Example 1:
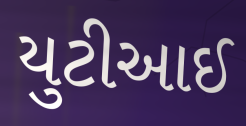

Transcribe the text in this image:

યુટીઆઈ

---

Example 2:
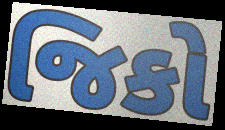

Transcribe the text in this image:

જિકો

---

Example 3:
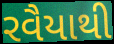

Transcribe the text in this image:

રવૈયાથી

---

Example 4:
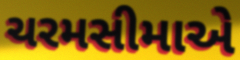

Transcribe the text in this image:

ચરમસીમાએ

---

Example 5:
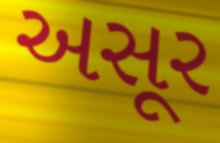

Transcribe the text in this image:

અસૂર